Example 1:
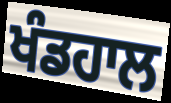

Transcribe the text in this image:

ਖੰਡਹਾਲ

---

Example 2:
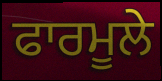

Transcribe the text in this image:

ਫਾਰਮੂਲੇ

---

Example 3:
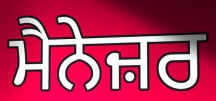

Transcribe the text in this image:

ਮੈਨੇਜ਼ਰ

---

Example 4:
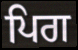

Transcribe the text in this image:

ਪਿਗ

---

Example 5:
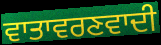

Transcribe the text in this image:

ਵਾਤਾਵਰਣਵਾਦੀ